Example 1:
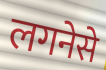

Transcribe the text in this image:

लगनेसे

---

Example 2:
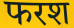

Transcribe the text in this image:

फरश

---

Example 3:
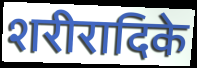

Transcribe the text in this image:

शरीरादिके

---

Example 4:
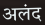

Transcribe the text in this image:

अलंद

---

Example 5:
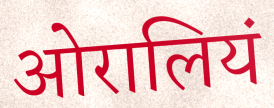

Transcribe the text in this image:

ओरालियं